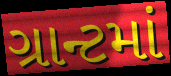
ગ્રાન્ટમાં